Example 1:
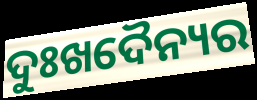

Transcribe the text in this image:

ଦୁଃଖଦୈନ୍ୟର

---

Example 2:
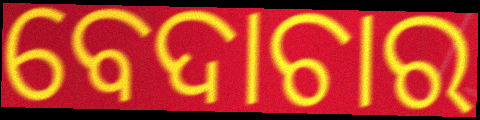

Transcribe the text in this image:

ବେଦାଚାର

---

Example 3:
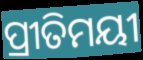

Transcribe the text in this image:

ପ୍ରୀତିମୟୀ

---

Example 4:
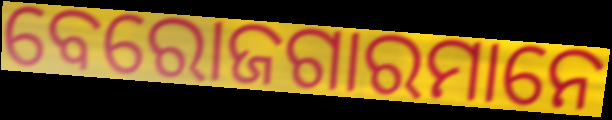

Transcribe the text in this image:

ବେରୋଜଗାରମାନେ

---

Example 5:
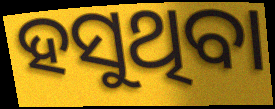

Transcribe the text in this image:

ହସୁଥିବା